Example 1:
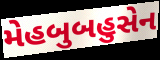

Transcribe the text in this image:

મેહબુબહુસેન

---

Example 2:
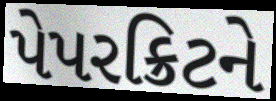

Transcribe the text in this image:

પેપરક્રિટને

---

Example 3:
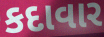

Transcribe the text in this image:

કદાવાર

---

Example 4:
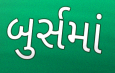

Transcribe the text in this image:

બુર્સમાં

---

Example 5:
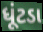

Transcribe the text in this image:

ધૂંટડા